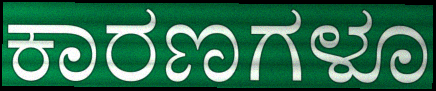
ಕಾರಣಗಳೂ